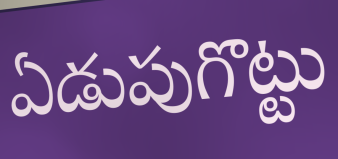
ఏడుపుగొట్టు